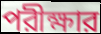
পরীক্ষার